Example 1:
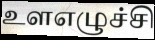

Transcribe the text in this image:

உளஎழுச்சி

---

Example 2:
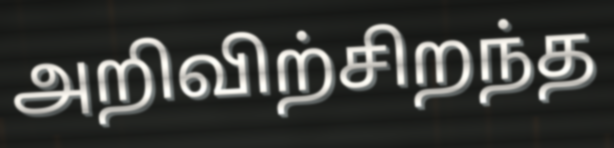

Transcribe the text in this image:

அறிவிற்சிறந்த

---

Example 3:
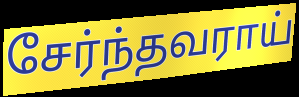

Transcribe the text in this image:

சேர்ந்தவராய்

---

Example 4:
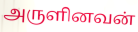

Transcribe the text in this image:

அருளினவன்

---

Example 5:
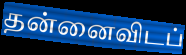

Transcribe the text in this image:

தன்னைவிடப்